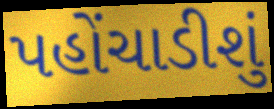
પહોંચાડીશું